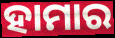
ହାମାର